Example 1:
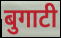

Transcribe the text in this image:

बुगाटी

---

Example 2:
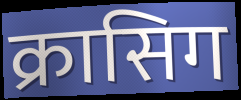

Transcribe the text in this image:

क्रासिग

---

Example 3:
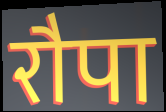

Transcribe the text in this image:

रौपा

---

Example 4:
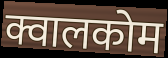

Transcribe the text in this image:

क्वालकोम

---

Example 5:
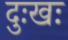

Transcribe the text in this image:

दुःखः